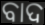
ବାଦ